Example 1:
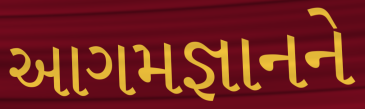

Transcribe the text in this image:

આગમજ્ઞાનને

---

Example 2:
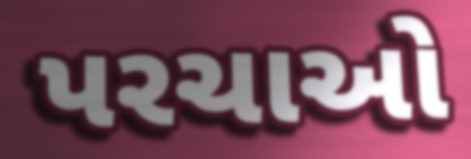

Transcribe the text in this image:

પરચાઓ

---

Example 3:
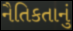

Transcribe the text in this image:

નૈતિકતાનું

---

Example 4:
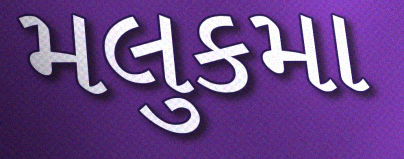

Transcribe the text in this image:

મલુકમા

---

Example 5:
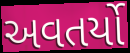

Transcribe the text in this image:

અવતર્યો